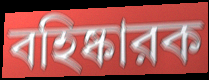
বহিষ্কারক